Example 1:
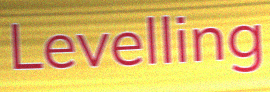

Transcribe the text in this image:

Levelling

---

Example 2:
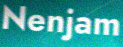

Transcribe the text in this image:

Nenjam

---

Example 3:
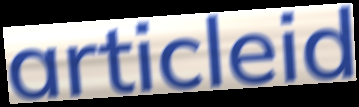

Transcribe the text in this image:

articleid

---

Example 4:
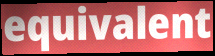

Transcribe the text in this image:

equivalent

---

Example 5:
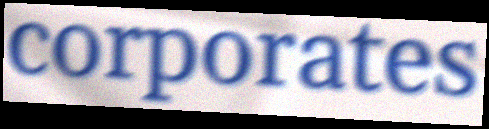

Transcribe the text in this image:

corporates